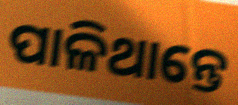
ପାଳିଥାନ୍ତେ